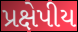
પ્રક્ષેપીય